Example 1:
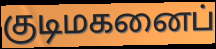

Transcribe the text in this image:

குடிமகனைப்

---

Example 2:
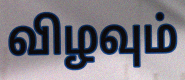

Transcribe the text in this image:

விழவும்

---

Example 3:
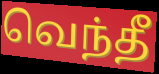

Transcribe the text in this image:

வெந்தீ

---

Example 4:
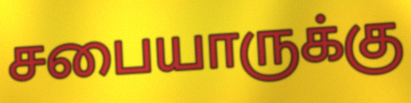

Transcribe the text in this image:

சபையாருக்கு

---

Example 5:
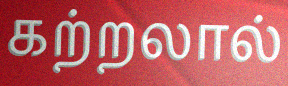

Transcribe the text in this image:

கற்றலால்